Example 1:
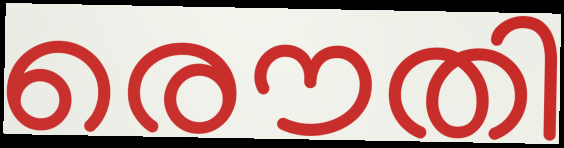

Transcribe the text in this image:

രൌതി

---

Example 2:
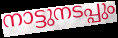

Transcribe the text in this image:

നാട്ടുനടപ്പും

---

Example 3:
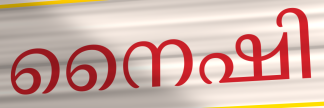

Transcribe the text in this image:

നൈഷി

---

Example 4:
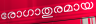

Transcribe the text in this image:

രോഗാതുരമായ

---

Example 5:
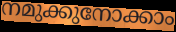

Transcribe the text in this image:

നമുക്കുനോക്കാം